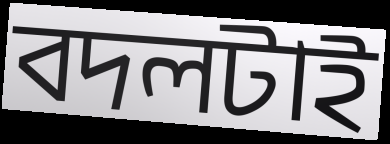
বদলটাই